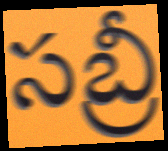
సబ్రీ